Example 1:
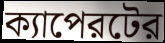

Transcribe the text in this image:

ক্যাপেরটের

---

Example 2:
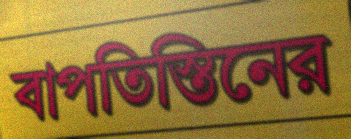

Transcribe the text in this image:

বাপতিস্তিনের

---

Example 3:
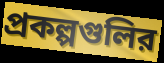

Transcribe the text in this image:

প্রকল্পগুলির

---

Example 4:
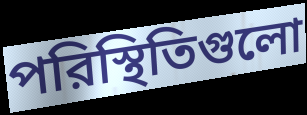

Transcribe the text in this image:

পরিস্থিতিগুলো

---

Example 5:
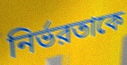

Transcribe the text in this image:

নির্ভরতাকে